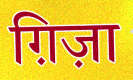
ग़िज़ा